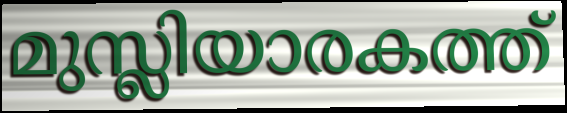
മുസ്ലിയാരകത്ത്